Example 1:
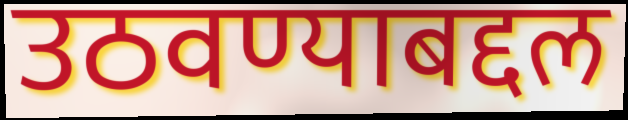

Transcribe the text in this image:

उठवण्याबद्दल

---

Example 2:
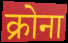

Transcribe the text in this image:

क्रोना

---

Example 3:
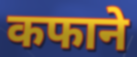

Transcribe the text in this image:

कफाने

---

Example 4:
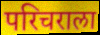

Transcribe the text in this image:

परिचराला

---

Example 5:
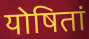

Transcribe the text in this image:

योषितां